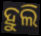
ହୁଲି